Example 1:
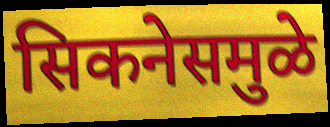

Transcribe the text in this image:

सिकनेसमुळे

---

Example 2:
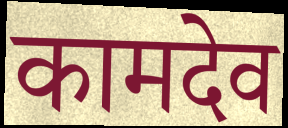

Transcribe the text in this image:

कामदेव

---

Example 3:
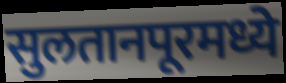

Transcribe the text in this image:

सुलतानपूरमध्ये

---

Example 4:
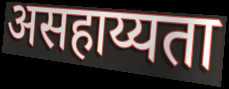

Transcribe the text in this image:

असहाय्यता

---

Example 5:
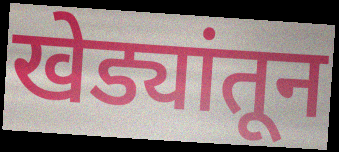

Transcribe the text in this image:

खेड्यांतून